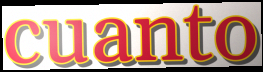
cuanto